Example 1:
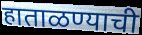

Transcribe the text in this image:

हाताळण्याची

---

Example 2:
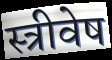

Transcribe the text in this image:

स्त्रीवेष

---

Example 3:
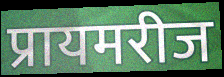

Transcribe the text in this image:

प्रायमरीज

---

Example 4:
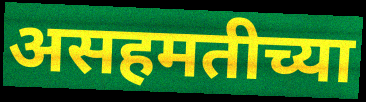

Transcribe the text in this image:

असहमतीच्या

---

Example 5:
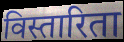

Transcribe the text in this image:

विस्तारिता